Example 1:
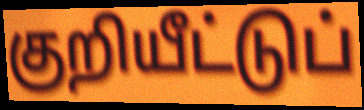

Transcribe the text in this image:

குறியீட்டுப்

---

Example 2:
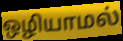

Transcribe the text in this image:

ஒழியாமல்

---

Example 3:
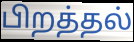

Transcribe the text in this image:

பிறத்தல்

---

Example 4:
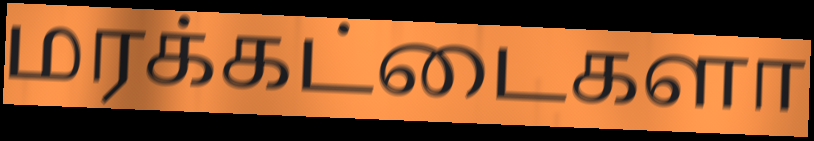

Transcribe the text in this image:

மரக்கட்டைகளா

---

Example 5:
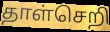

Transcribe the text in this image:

தாள்செறி